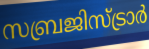
സബ്രജിസ്ട്രാർ